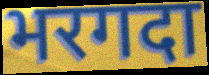
भरगदा